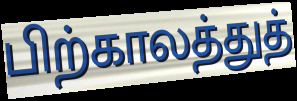
பிற்காலத்துத்